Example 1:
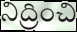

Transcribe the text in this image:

నిద్రించి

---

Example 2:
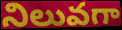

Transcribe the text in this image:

నిలువగా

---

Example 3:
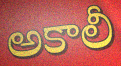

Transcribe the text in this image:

అకాలీ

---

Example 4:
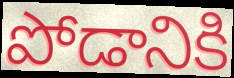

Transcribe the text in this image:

పోడానికి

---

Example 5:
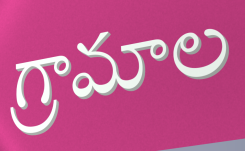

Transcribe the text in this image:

గ్రామాల